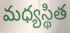
మధ్యస్థిత